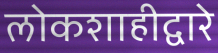
लोकशाहीद्वारे